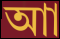
আা